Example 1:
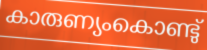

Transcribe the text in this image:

കാരുണ്യംകൊണ്ടു്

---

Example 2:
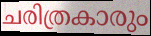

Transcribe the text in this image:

ചരിത്രകാരും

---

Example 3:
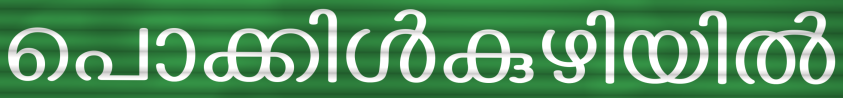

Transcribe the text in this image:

പൊക്കിൾകുഴിയിൽ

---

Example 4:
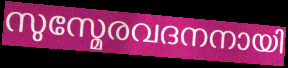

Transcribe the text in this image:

സുസ്മേരവദനനായി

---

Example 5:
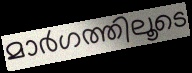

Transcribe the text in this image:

മാർഗത്തിലൂടെ